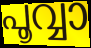
പൂവ്വാ